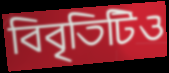
বিবৃতিটিও